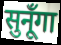
सुनूँगा